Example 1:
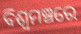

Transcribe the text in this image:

ବିଶ୍ୱମଞ୍ଚରେ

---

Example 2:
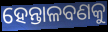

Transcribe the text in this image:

ହେନ୍ତାଳବଣକୁ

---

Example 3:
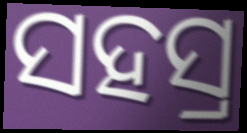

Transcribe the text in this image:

ସହସ୍ର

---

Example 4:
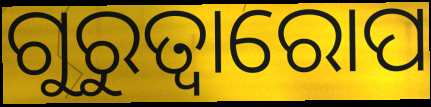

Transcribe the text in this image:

ଗୁରୁତ୍ୱାରୋପ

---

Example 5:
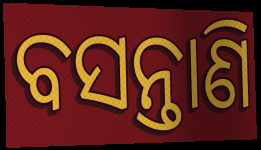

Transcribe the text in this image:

ବସନ୍ତାଣି